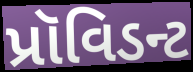
પ્રૉવિડન્ટ